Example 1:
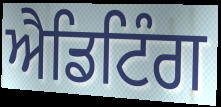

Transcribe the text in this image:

ਐਡਿਟਿੰਗ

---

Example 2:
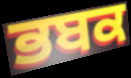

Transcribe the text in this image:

ਭਬਕ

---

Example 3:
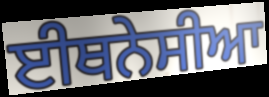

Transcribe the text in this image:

ਈਥਨੇਸੀਆ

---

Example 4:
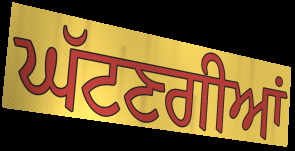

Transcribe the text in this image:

ਘੱਟਣਗੀਆਂ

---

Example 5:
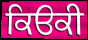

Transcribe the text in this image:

ਕਿੳਕੀ